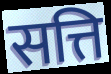
सत्ति